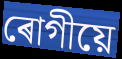
ৰোগীয়ে